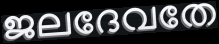
ജലദേവതേ